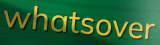
whatsover